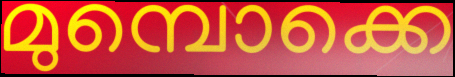
മുമ്പൊക്കെ